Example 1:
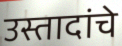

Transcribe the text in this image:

उस्तादांचे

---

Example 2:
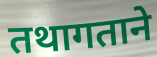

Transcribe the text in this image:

तथागताने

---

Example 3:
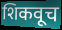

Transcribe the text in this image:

शिकवूच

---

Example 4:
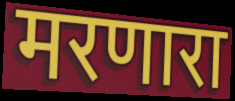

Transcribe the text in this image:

मरणारा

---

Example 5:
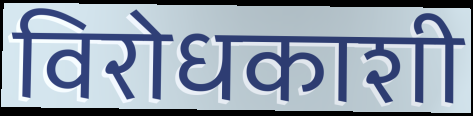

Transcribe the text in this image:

विरोधकाशी